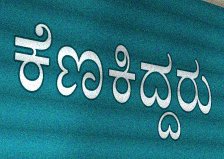
ಕೆಣಕಿದ್ದರು